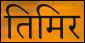
तिमिर